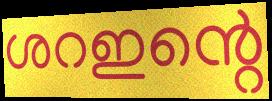
ശറഇന്റെ